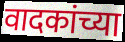
वादकांच्या